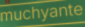
muchyante